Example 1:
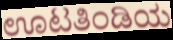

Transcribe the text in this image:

ಊಟತಿಂಡಿಯ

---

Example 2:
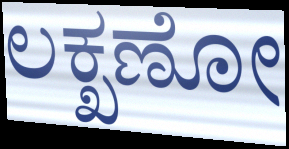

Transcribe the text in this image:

ಲಕ್ಖಣೋ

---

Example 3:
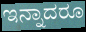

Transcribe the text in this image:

ಇನ್ನಾದರೂ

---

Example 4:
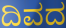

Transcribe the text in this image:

ದಿವದ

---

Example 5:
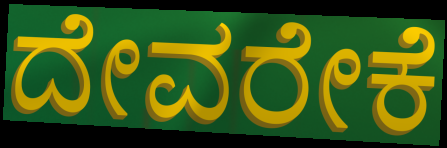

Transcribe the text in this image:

ದೇವರೇಕೆ